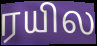
ரயில